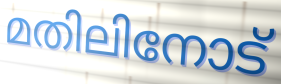
മതിലിനോട്